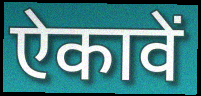
ऐकावें